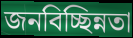
জনবিচ্ছিন্নতা